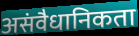
असंवैधानिकता